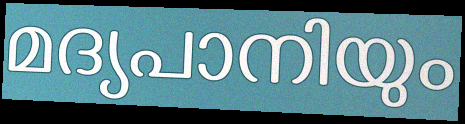
മദ്യപാനിയും